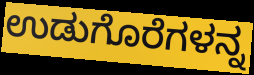
ಉಡುಗೊರೆಗಳನ್ನ